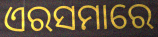
ଏରସମାରେ